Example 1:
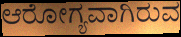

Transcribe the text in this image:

ಆರೋಗ್ಯವಾಗಿರುವ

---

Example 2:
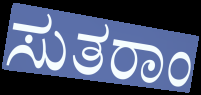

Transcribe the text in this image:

ಸುತರಾಂ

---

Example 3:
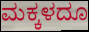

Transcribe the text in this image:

ಮಕ್ಕಳದೂ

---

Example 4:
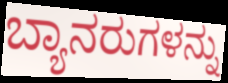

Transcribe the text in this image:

ಬ್ಯಾನರುಗಳನ್ನು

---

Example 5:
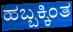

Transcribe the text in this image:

ಹಬ್ಬಕ್ಕಿಂತ